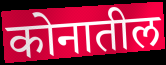
कोनातील